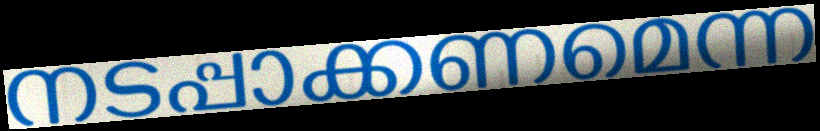
നടപ്പാക്കണമെന്ന